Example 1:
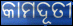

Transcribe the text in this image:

କାମଦୂତୀ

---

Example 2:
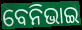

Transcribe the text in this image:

ବେନିଭାଇ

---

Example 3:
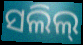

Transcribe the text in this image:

ସଲିଲ୍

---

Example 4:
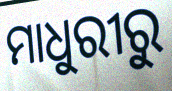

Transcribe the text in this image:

ମାଧୁରୀରୁ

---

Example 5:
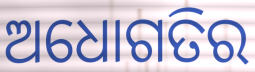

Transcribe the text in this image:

ଅଧୋଗତିର